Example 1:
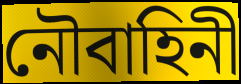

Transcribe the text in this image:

নৌবাহিনী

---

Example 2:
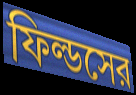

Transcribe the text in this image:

ফিল্ডসের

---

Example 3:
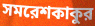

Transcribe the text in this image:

সমরেশকাকুর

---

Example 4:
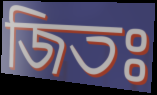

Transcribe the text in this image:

জিতঃ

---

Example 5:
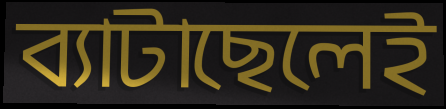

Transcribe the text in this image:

ব্যাটাছেলেই